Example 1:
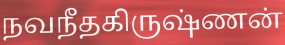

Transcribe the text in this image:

நவநீதகிருஷ்ணன்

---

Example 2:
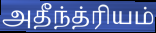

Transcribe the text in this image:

அதீந்த்ரியம்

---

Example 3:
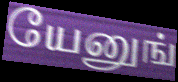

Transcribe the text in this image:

யேனுங்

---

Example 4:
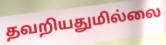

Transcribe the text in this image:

தவறியதுமில்லை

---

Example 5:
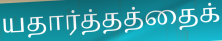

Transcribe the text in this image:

யதார்த்தத்தைக்